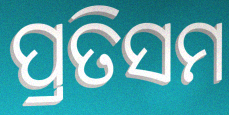
ପ୍ରତିସମ